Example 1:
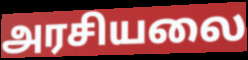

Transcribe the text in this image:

அரசியலை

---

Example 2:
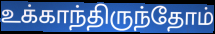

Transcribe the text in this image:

உக்காந்திருந்தோம்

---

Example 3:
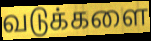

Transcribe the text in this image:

வடுக்களை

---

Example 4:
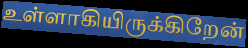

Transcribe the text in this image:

உள்ளாகியிருக்கிறேன்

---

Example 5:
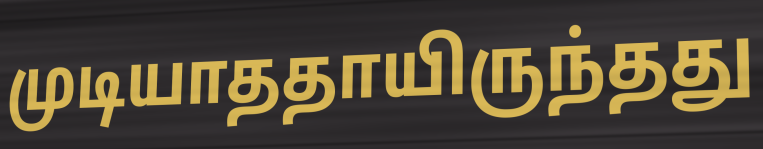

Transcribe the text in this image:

முடியாததாயிருந்தது